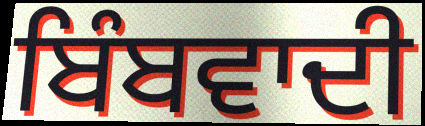
ਬਿੰਬਵਾਦੀ